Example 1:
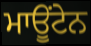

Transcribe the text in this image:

ਮਾਊਂਟੇਨ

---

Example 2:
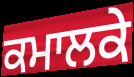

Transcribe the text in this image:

ਕਮਾਲਕੇ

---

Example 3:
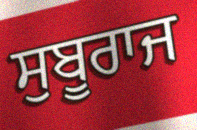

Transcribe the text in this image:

ਸੁਬੂਰਾਜ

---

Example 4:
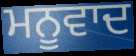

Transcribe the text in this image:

ਮਨੂਵਾਦ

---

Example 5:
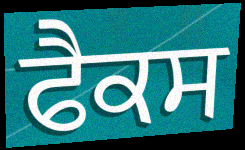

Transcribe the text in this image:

ਫੈਕਸ